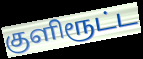
குளிரூட்ட